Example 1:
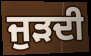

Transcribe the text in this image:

ਜੁੜਦੀ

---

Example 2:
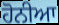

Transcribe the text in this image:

ਹੋਨੀਆ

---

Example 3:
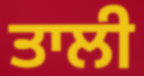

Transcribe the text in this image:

ਤਾਲੀ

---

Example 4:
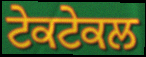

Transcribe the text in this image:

ਟੇਕਟੇਕਲ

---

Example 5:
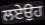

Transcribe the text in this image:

ਲਏਉਹ